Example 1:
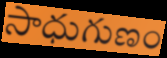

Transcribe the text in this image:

సాధుగుణం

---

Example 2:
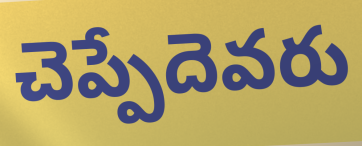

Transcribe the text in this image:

చెప్పేదెవరు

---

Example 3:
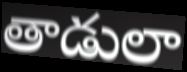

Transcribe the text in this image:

తాడులా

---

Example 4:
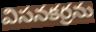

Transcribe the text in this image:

విసనకర్రను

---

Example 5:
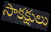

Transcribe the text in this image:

సాకక్షులు